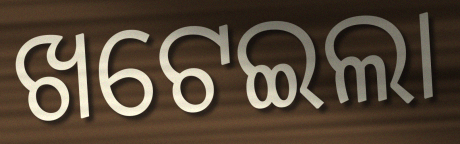
ଖଟେଇଲା